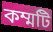
কম্মটি